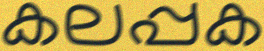
കലപ്പക